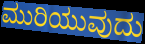
ಮುರಿಯುವುದು